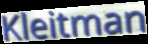
Kleitman